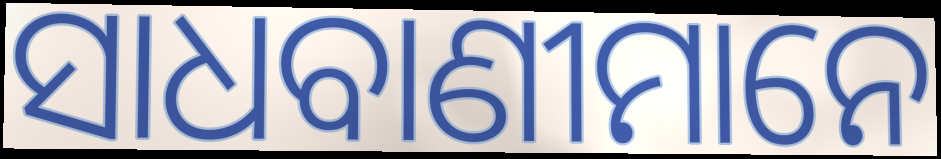
ସାଧବାଣୀମାନେ